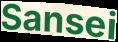
Sansei